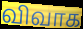
விவாக